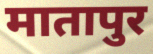
मातापुर